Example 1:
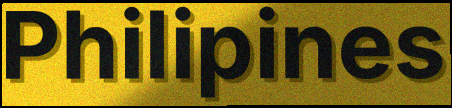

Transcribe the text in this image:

Philipines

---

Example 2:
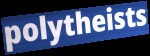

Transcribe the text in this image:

polytheists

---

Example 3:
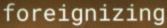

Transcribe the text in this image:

foreignizing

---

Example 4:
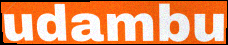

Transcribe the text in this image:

udambu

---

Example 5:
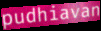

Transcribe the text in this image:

pudhiavan